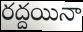
రద్దయినా